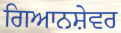
ਗਿਆਨਸ਼ੇਵਰ